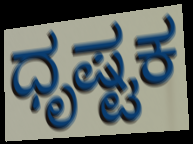
ಧೃಷ್ಟಕ